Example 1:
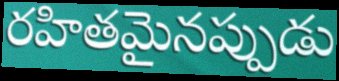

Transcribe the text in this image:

రహితమైనప్పుడు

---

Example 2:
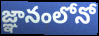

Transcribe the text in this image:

జ్ఞానంలోనో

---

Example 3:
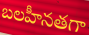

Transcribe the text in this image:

బలహీనతగా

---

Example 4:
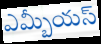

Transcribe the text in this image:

ఎమ్బీయస్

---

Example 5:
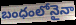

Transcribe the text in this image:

బంధంలోనైనా